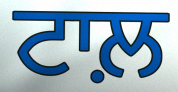
ਟਾਲ਼